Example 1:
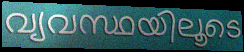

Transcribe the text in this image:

വ്യവസ്ഥയിലൂടെ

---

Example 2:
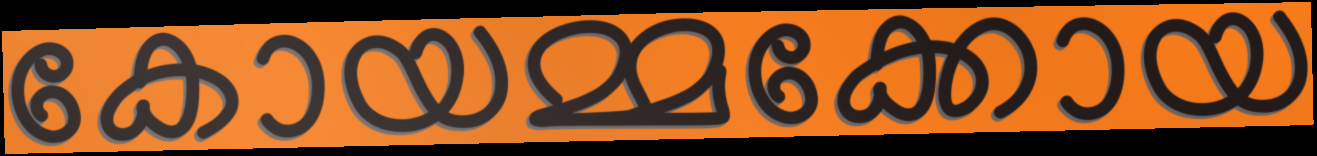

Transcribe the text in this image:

കോയമ്മക്കോയ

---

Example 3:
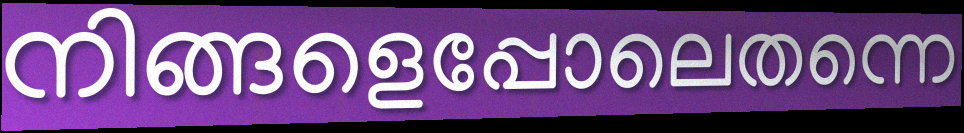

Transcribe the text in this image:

നിങ്ങളെപ്പോലെതന്നെ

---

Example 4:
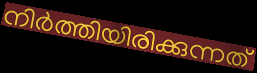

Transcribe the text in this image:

നിർത്തിയിരിക്കുന്നത്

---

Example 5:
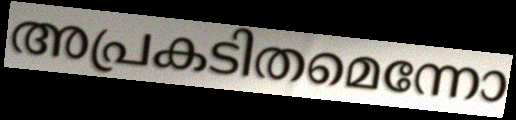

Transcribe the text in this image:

അപ്രകടിതമെന്നോ